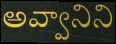
అవ్వానిని